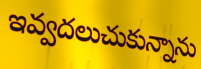
ఇవ్వదలుచుకున్నాను